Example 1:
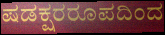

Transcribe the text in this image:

ಷಡಕ್ಷರರೂಪದಿಂದ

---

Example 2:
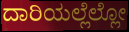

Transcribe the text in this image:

ದಾರಿಯಲ್ಲೆಲ್ಲೋ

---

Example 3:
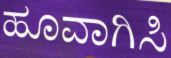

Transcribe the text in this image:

ಹೂವಾಗಿಸಿ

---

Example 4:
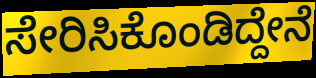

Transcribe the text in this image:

ಸೇರಿಸಿಕೊಂಡಿದ್ದೇನೆ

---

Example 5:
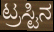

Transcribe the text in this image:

ಟ್ರಸ್ಟಿನ